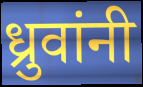
ध्रुवांनी